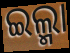
ଇଲ୍ମା